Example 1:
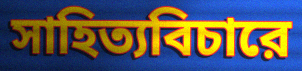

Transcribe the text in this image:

সাহিত্যবিচারে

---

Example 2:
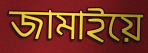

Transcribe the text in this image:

জামাইয়ে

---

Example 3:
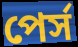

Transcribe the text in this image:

পের্স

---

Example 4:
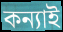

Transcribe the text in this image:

কন্যাই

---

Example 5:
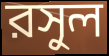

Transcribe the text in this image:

রসুল